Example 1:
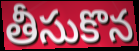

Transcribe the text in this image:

తీసుకొన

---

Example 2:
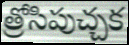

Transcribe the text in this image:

త్రోసిపుచ్చక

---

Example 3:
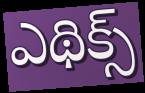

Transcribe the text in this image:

ఎథిక్స్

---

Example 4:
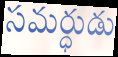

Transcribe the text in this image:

సమర్ధుడు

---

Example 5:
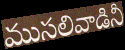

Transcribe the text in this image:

ముసలివాడినీ